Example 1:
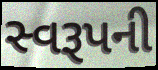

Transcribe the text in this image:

સ્વરૂપની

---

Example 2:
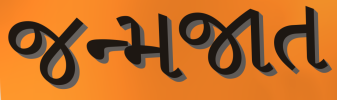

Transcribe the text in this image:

જન્મજાત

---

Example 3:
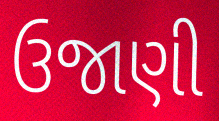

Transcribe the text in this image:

ઉજાણી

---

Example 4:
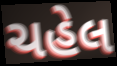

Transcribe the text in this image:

ચહેલ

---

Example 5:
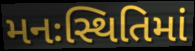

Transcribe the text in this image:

મનઃસ્થિતિમાં